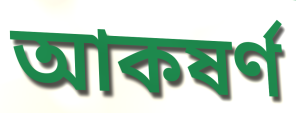
আকষৰ্ণ